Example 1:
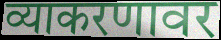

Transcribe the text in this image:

व्याकरणावर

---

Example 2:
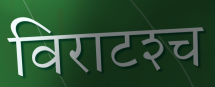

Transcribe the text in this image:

विराटश्च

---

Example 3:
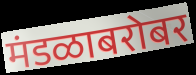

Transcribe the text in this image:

मंडळाबरोबर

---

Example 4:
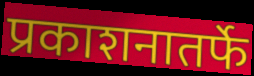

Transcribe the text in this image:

प्रकाशनातर्फे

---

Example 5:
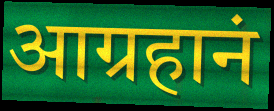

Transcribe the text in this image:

आग्रहानं